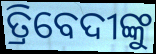
ତ୍ରିବେଦୀଙ୍କୁ